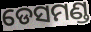
ଡେସମଣ୍ଡ